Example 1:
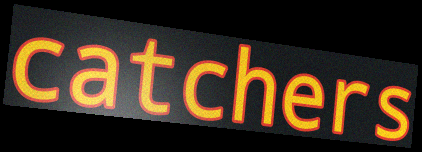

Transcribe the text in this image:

catchers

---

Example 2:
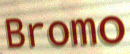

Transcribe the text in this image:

Bromo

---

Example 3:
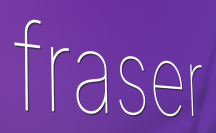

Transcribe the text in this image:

fraser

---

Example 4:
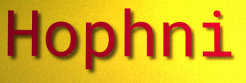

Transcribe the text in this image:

Hophni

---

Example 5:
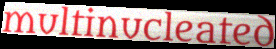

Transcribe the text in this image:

multinucleated